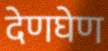
देणघेण